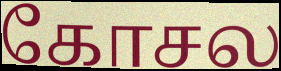
கோசல